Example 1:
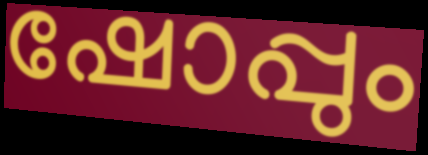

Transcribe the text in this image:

ഷോപ്പും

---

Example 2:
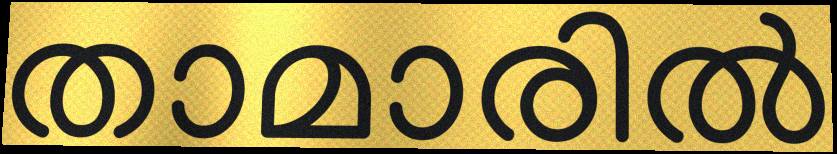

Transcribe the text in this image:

താമാരിൽ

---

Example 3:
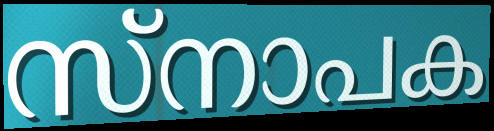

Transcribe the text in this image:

സ്നാപക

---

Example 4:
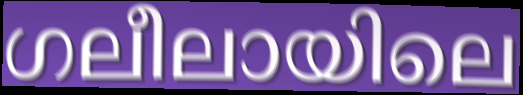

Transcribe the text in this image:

ഗലീലായിലെ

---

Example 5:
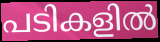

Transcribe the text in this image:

പടികളിൽ